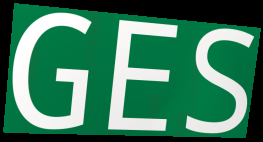
GES